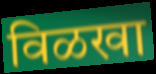
विळखा